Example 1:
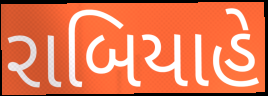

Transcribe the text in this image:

રાબિયાહે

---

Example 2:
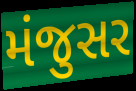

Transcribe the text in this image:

મંજુસર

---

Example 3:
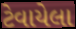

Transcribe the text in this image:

ટેવાયેલા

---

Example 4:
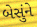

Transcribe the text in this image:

બેસુંને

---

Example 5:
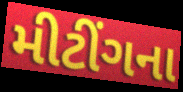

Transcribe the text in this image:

મીટીંગના